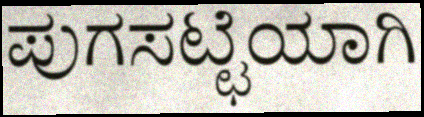
ಪುಗಸಟ್ಟೆಯಾಗಿ